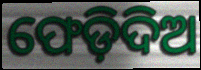
ଫେଡ଼ିଦିଅ